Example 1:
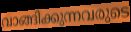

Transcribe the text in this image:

വാങ്ങിക്കുന്നവരുടെ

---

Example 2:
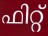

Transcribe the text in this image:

ഫിറ്റ്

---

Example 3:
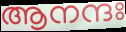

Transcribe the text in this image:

ആനന്ദഃ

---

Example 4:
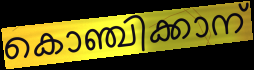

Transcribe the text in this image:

കൊഞ്ചിക്കാന്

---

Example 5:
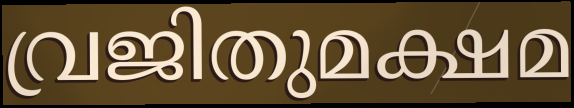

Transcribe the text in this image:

വ്രജിതുമക്ഷമ